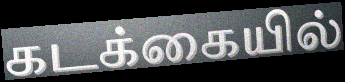
கடக்கையில்